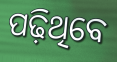
ପଢ଼ିଥିବେ